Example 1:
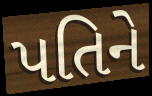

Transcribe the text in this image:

પતિને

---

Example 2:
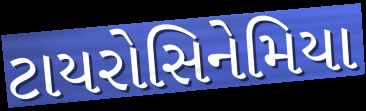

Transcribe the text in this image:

ટાયરોસિનેમિયા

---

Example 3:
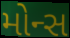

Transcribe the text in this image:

મોન્સ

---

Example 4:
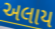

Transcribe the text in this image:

અલાય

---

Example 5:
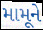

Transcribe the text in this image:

મામૂને